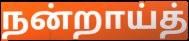
நன்றாய்த்